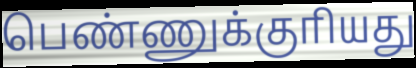
பெண்ணுக்குரியது